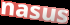
nasus